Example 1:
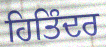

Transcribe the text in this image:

ਹਿਤਿੰਦਰ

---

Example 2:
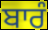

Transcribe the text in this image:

ਬਾਰੰ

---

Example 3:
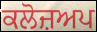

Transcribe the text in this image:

ਕਲੋਜ਼ਅਪ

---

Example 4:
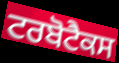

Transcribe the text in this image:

ਟਰਬੋਟੈਕਸ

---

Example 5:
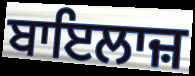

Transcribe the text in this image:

ਬਾਇਲਾਜ਼